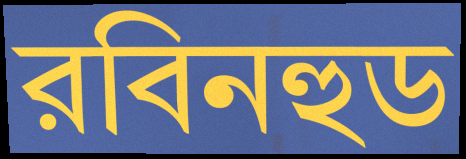
রবিনহুড